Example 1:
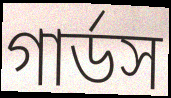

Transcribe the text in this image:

গার্ডস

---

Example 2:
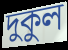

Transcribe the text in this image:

দুকুল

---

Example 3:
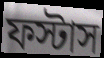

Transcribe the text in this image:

ফস্টাস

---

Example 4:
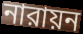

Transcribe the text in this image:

নারায়ন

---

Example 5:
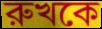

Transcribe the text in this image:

রুখকে